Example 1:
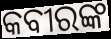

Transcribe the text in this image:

କବୀରଙ୍କ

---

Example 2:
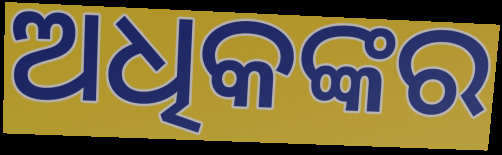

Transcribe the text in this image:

ଅଧିକଙ୍କର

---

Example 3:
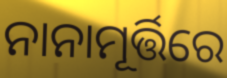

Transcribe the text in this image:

ନାନାମୂର୍ତ୍ତିରେ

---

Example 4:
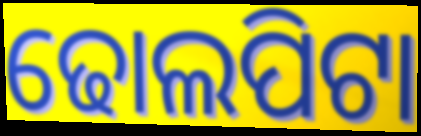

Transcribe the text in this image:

ଢୋଲପିଟା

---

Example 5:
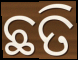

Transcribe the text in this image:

ଛତି